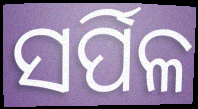
ସର୍ପିଳ